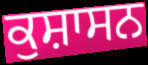
ਕੁਸ਼ਾਸਨ